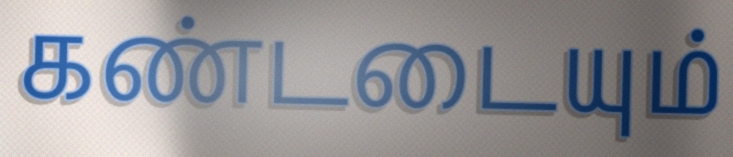
கண்டடையும்